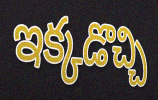
ఇక్కడొచ్చి